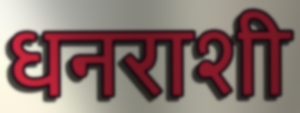
धनराशी